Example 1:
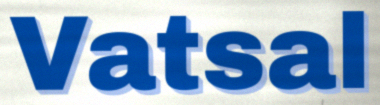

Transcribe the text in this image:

Vatsal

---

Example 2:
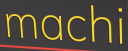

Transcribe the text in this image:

machi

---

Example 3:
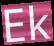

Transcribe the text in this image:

Ek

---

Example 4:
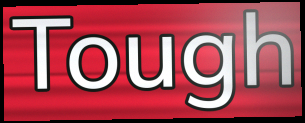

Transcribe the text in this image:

Tough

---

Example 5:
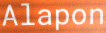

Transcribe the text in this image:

Alapon